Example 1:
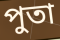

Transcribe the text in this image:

পুতা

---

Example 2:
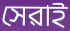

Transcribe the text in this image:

সেৱাই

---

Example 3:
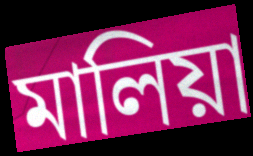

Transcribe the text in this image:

মালিয়া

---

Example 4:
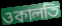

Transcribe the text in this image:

ওকালতি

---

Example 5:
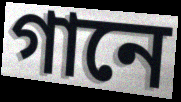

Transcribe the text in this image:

গানে